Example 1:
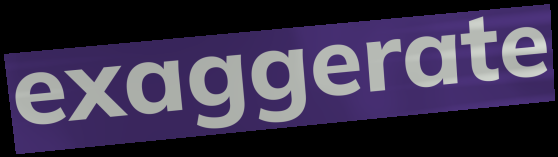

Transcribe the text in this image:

exaggerate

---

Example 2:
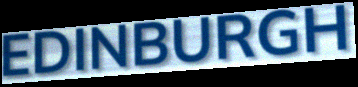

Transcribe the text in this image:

EDINBURGH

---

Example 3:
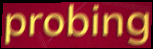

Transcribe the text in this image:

probing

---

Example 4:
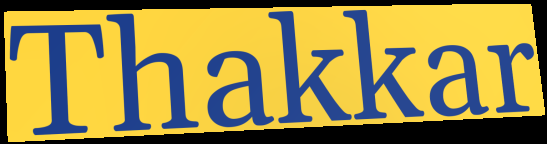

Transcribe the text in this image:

Thakkar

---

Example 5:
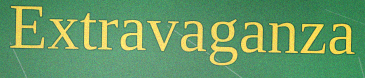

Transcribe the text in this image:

Extravaganza